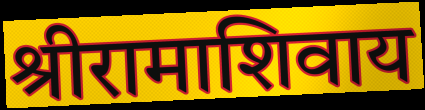
श्रीरामाशिवाय